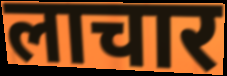
लाचार